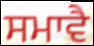
ਸਮਾਵੈ